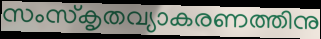
സംസ്കൃതവ്യാകരണത്തിനു